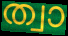
ത്വാ